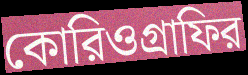
কোরিওগ্রাফির